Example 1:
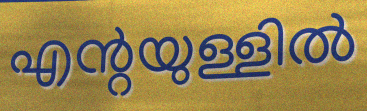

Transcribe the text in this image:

എന്റയുള്ളിൽ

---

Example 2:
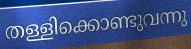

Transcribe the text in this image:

തള്ളിക്കൊണ്ടുവന്നു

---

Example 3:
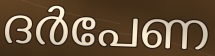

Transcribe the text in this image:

ദർപേണ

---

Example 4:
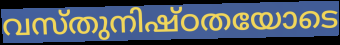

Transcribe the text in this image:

വസ്തുനിഷ്ഠതയോടെ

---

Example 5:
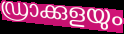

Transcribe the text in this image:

ഡ്രാക്കുളയും